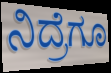
ನಿದ್ರೆಗೂ